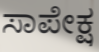
ಸಾಪೇಕ್ಷ